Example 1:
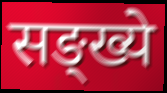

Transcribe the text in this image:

सङ्ख्ये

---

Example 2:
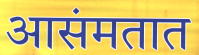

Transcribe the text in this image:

आसंमतात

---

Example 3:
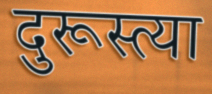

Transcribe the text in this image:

दुरूस्त्या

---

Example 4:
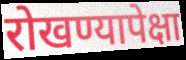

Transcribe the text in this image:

रोखण्यापेक्षा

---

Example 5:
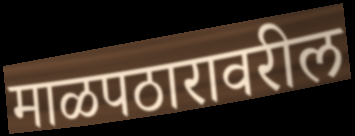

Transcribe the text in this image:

माळपठारावरील